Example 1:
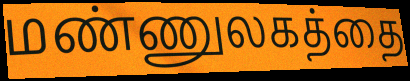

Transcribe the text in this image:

மண்ணுலகத்தை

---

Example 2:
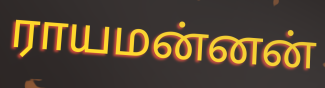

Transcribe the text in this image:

ராயமன்னன்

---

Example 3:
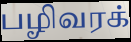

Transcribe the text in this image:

பழிவரக்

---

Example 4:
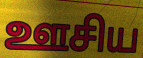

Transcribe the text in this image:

ஊசிய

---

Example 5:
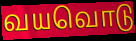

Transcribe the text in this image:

வயவொடு